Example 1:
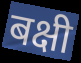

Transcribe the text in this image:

बक्षी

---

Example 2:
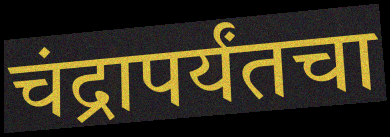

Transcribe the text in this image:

चंद्रापर्यंतचा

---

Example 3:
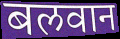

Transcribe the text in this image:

बलवान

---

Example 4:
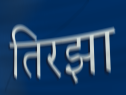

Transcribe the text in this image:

तिरझा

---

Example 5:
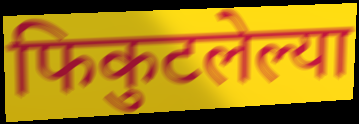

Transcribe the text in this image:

फिकुटलेल्या